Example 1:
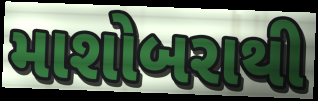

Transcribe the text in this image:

માશોબરાથી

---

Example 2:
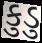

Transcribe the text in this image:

કુડુ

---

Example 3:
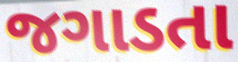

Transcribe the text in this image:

જગાડતા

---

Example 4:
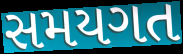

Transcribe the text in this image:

સમયગત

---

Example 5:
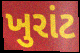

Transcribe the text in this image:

ખુરાંટ